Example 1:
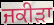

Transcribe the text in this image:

ਜਕੀੜਾ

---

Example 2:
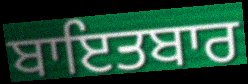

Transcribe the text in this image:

ਬਾਇਤਬਾਰ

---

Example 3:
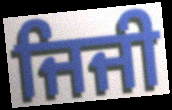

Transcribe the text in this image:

ਜਿਜੀ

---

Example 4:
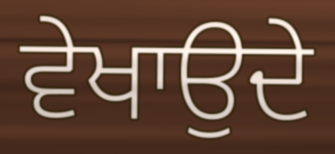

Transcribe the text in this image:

ਵੇਖਾਉਦੇ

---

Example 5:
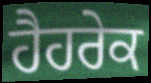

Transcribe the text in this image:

ਹੈਹਰੇਕ